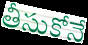
తీసుకోనే